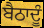
ਬੈਠਾਦੂੰ